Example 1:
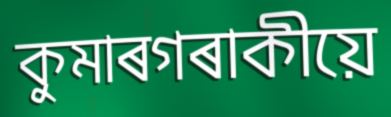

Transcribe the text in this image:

কুমাৰগৰাকীয়ে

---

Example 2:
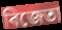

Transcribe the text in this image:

বিজেতা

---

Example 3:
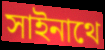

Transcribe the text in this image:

সাইনাথে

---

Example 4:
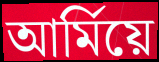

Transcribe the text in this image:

আৰ্মিয়ে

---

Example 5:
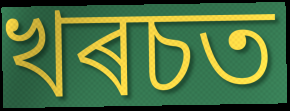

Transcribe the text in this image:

খৰচত